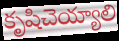
కృషిచెయ్యాలి